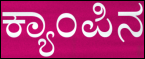
ಕ್ಯಾಂಪಿನ